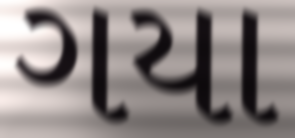
ગયા